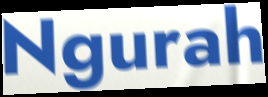
Ngurah